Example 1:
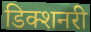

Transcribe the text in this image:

डिक्शनरी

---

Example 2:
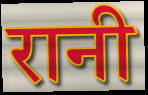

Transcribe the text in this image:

रानी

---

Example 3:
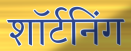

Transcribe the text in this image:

शॉर्टनिंग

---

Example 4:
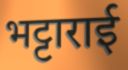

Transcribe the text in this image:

भट्टाराई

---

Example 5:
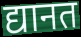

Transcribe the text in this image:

द्यानत